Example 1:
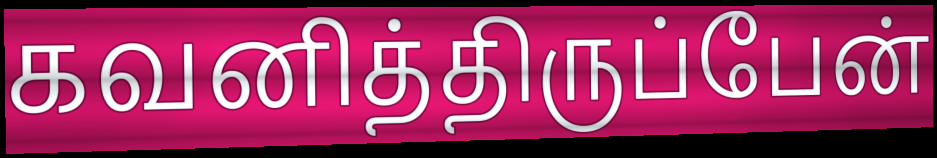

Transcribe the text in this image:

கவனித்திருப்பேன்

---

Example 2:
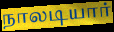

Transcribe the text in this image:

நாலடியார்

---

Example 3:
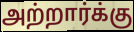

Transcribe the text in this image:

அற்றார்க்கு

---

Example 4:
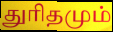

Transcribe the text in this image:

துரிதமும்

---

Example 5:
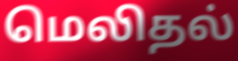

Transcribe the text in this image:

மெலிதல்